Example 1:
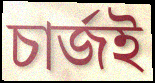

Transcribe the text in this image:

চার্জই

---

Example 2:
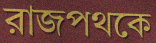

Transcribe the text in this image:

রাজপথকে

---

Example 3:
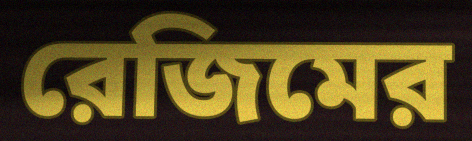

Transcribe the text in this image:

রেজিমের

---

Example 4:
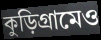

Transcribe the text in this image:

কুড়িগ্রামেও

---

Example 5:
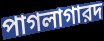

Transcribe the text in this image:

পাগলাগারদ